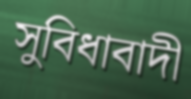
সুবিধাবাদী